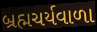
બ્રહ્મચર્યવાળા